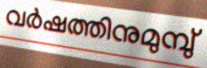
വർഷത്തിനുമുമ്പു്